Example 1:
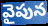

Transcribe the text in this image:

వైపున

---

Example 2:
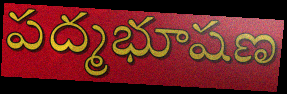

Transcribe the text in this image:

పద్మభూషణ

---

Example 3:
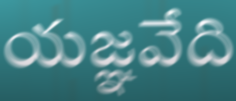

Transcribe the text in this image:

యజ్ఞవేది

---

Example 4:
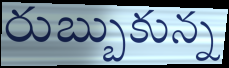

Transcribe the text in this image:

రుబ్బుకున్న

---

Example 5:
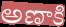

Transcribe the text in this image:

అణాకి